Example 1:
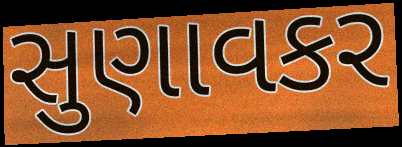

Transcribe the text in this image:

સુણાવકર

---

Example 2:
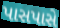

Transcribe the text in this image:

પાસપાસે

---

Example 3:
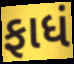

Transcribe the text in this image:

ફાધં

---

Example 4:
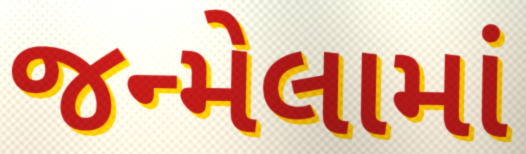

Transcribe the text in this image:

જન્મેલામાં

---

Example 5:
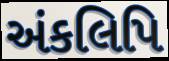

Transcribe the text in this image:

અંકલિપિ